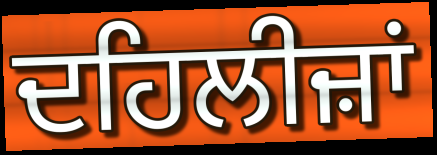
ਦਹਿਲੀਜ਼ਾਂ